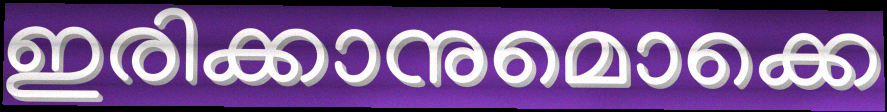
ഇരിക്കാനുമൊക്കെ